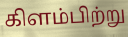
கிளம்பிற்று